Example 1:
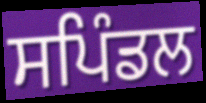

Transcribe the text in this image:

ਸਪਿੰਡਲ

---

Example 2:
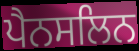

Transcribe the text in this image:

ਪੈਨਸਲਿਨ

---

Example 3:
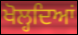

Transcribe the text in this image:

ਖੋਲ੍ਹਦਿਆਂ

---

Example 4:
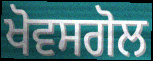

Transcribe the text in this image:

ਖੋਵਸਗੋਲ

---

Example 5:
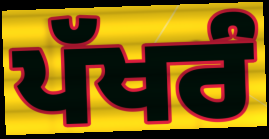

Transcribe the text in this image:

ਪੱਖਰੰ